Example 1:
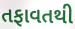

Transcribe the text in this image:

તફાવતથી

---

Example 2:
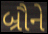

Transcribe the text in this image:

બ્રૌને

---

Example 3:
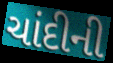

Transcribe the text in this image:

ચાંદીની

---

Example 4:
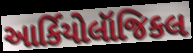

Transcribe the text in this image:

આર્કિયોલૉજિકલ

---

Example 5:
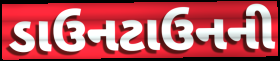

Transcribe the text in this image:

ડાઉનટાઉનની